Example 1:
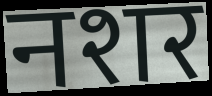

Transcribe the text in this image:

नशर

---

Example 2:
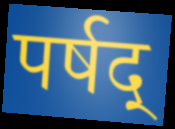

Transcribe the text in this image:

पर्षद्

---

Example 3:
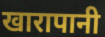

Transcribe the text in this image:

खारापानी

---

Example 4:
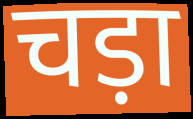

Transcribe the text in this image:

चड़ा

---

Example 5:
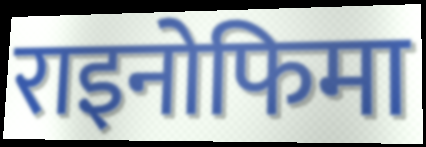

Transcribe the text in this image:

राइनोफिमा